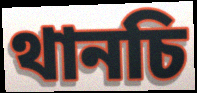
থানচি